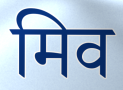
मिव